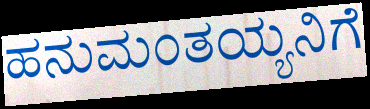
ಹನುಮಂತಯ್ಯನಿಗೆ